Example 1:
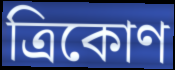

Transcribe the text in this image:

ত্ৰিকোণ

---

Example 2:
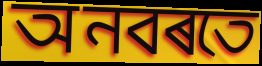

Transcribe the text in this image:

অনবৰতে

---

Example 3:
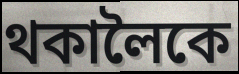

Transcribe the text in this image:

থকালৈকে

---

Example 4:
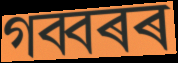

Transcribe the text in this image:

গব্বৰৰ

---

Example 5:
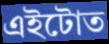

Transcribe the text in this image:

এইটোত